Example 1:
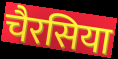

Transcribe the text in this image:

चैरसिया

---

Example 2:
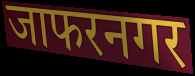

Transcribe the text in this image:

जाफरनगर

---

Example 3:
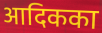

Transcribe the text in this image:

आदिकका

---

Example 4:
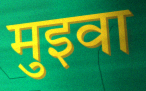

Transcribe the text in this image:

मुइवा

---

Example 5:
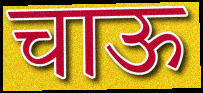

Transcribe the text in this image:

चाऊ